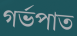
গর্ভপাত